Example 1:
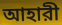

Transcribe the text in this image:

আহারী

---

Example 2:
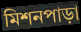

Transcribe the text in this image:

মিশনপাড়া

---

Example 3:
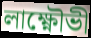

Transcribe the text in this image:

লাক্ষ্ণৌভী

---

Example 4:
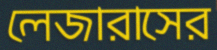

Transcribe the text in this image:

লেজারাসের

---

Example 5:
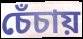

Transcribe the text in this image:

চেঁচায়